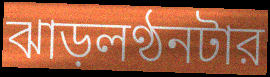
ঝাড়লণ্ঠনটার